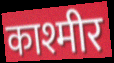
काश्मीर